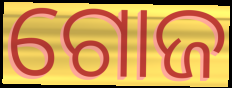
ଗୋଜ